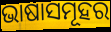
ଭାଷାସମୂହର